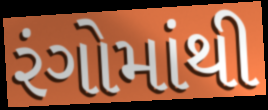
રંગોમાંથી